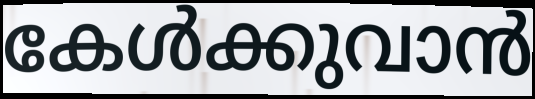
കേൾക്കുവാൻ